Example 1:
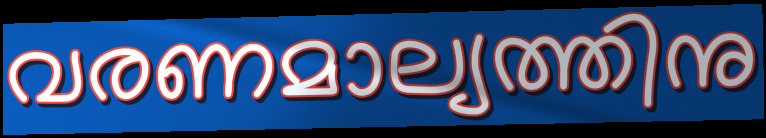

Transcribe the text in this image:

വരണമാല്യത്തിനു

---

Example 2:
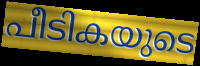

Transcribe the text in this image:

പീടികയുടെ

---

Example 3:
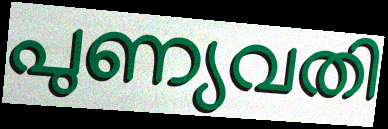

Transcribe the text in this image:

പുണ്യവതി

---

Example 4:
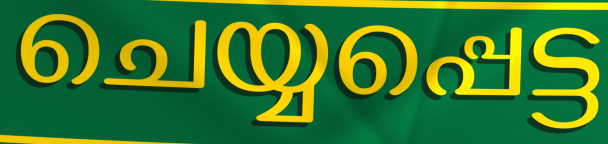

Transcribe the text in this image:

ചെയ്യപ്പെട്ട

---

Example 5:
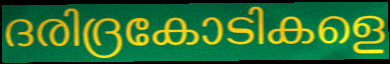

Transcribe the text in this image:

ദരിദ്രകോടികളെ